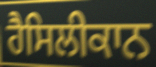
ਹੈਸਿਲੀਕਾਨ